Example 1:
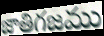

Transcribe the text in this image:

జాతిగజము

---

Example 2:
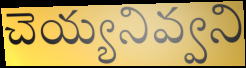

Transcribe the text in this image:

చెయ్యనివ్వని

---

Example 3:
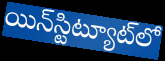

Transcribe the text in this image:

యిన్‌స్టిట్యూట్‌లో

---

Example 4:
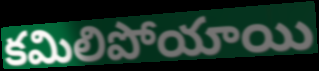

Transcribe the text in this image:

కమిలిపోయాయి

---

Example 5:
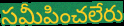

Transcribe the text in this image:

సమీపించలేరు